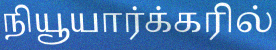
நியூயார்க்கரில்